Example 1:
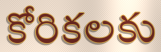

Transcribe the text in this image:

కోరికలకు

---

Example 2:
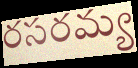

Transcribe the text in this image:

రసరమ్య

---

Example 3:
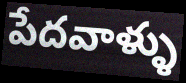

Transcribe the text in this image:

పేదవాళ్ళు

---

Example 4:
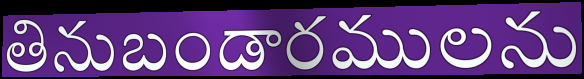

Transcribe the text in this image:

తినుబండారములను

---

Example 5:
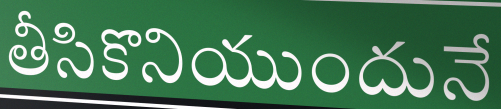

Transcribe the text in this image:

తీసికొనియుందునే